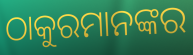
ଠାକୁରମାନଙ୍କର